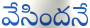
వేసిందనే